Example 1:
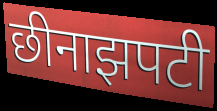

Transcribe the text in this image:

छीनाझपटी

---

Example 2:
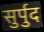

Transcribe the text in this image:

सुर्पुद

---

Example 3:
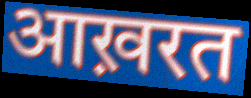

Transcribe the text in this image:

आख़रत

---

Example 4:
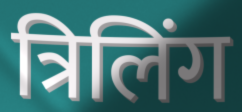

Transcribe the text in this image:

त्रिलिंग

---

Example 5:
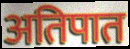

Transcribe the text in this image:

अतिपात